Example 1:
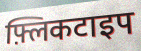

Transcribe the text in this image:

फ़्लिकटाइप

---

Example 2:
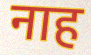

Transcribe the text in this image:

नाह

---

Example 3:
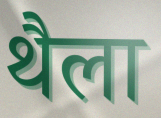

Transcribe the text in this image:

थैला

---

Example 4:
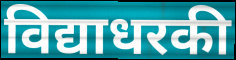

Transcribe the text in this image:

विद्याधरकी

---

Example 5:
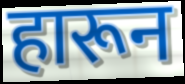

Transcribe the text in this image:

हारून